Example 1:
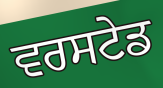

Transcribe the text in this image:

ਵਰਸਟੇਡ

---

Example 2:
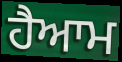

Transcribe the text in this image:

ਹੈਆਮ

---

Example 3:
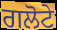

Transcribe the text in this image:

ਗਲੋਟੇ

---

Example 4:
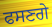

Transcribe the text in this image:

ਫਸਣਗੇ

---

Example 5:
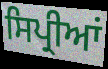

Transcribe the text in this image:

ਸਿਪ੍ਰੀਆਂ